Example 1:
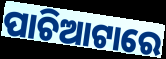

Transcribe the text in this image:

ପାଚିଆଟାରେ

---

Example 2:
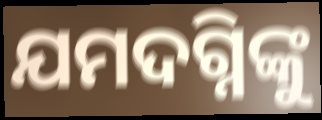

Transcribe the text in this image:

ଯମଦଗ୍ନିଙ୍କୁ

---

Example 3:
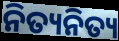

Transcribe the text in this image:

ନିତ୍ୟନିତ୍ୟ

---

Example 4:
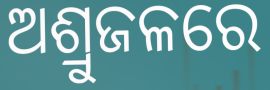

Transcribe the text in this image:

ଅଶ୍ରୁଜଳରେ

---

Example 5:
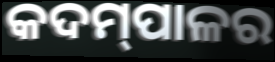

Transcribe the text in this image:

କଦମ୍‍ପାଳର